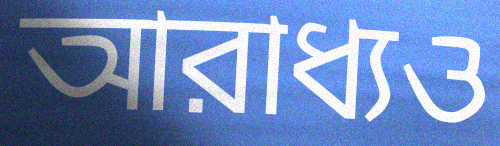
আরাধ্যও